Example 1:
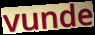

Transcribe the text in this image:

vunde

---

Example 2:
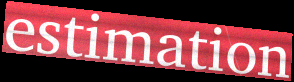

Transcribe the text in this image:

estimation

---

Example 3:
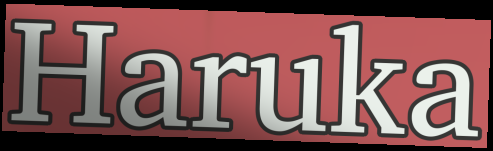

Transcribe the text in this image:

Haruka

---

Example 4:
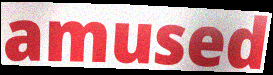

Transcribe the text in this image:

amused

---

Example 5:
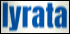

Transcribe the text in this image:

lyrata